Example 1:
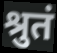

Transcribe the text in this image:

श्रुतं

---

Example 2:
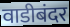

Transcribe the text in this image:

वाडीबंदर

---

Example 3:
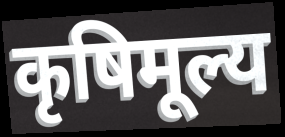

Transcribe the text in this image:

कृषिमूल्य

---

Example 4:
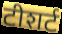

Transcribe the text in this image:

टीशर्ट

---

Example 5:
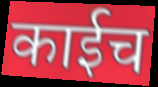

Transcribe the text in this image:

काईच